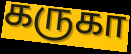
கருகா